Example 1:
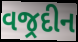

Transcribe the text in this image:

વજ્રદીન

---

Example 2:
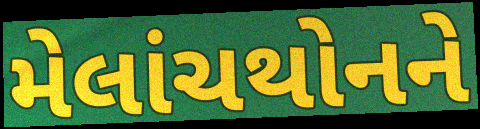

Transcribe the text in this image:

મેલાંચથોનને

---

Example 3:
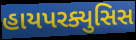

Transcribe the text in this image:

હાયપરક્યુસિસ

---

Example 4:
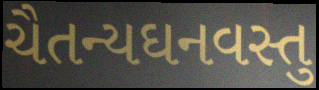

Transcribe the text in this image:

ચૈતન્યઘનવસ્તુ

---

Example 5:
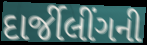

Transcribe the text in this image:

દાર્જીલીંગની